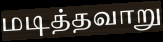
மடித்தவாறு